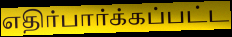
எதிர்பார்க்கப்பட்ட